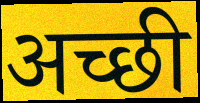
अच्‍छी